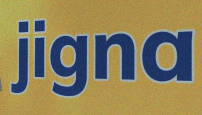
jigna